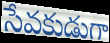
సేవకుడుగా